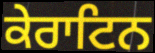
ਕੇਰਾਟਿਨ